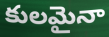
కులమైనా